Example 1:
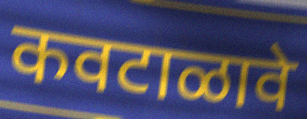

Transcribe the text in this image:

कवटाळावे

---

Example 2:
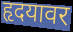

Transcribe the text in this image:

हृदयावर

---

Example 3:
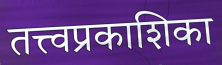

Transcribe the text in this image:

तत्त्वप्रकाशिका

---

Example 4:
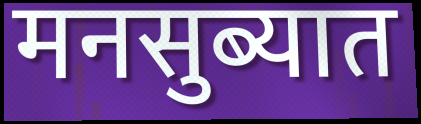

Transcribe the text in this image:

मनसुब्यात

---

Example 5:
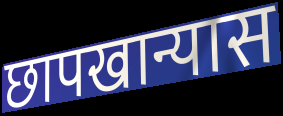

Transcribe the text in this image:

छापखान्यास